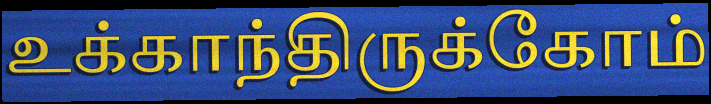
உக்காந்திருக்கோம்